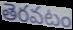
తెరవటం